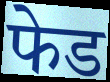
फेड